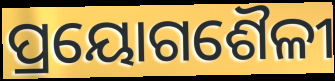
ପ୍ରୟୋଗଶୈଳୀ